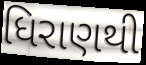
ધિરાણથી